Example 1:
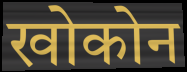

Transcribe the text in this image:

खोकोन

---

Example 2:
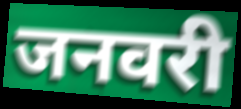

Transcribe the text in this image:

जनवरी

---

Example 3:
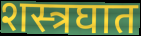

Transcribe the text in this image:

शस्त्रघात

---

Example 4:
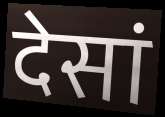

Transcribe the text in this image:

देसां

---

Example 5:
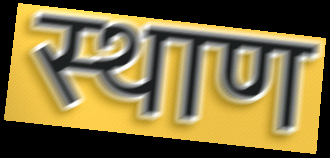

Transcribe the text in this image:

स्थाण